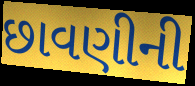
છાવણીની